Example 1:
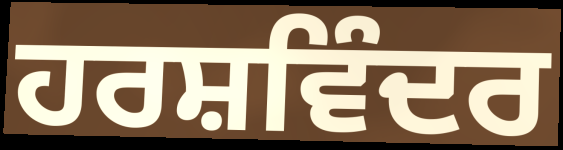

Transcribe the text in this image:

ਹਰਸ਼ਵਿੰਦਰ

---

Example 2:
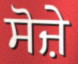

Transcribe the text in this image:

ਸੋਜ਼ੇ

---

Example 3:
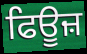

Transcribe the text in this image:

ਫਿਊਜ਼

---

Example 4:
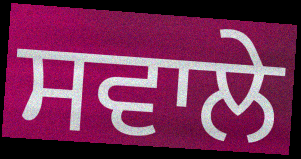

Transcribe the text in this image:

ਸਵਾਲੇ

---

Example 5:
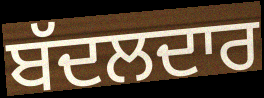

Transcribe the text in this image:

ਬੱਦਲਦਾਰ